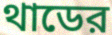
থাডের